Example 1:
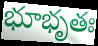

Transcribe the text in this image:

భూభృతః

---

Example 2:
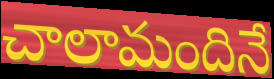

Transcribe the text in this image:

చాలామందినే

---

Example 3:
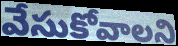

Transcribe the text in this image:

వేసుకోవాలని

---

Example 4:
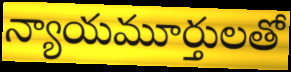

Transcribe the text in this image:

న్యాయమూర్తులతో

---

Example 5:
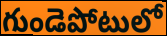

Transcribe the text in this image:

గుండెపోటులో